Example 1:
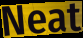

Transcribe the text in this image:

Neat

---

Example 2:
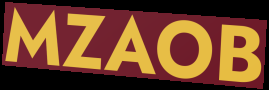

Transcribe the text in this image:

MZAOB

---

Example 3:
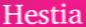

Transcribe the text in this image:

Hestia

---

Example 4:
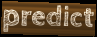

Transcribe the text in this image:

predict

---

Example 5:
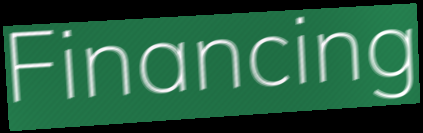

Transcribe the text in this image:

Financing